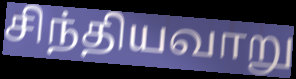
சிந்தியவாறு